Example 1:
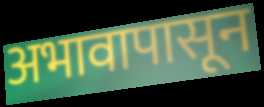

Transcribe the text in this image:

अभावापासून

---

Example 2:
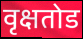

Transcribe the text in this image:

वृक्षतोड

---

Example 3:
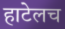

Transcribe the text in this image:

हाटेलच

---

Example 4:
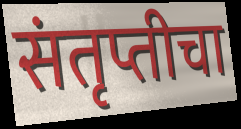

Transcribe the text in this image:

संतृप्तीचा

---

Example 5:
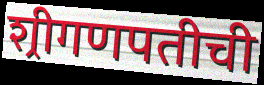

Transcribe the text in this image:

श्रीगणपतीची